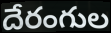
దేరంగుల